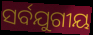
ସର୍ବଯୁଗୀୟ